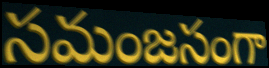
సమంజసంగా